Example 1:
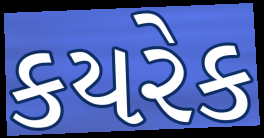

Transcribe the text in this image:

કયરેક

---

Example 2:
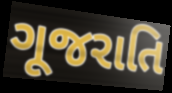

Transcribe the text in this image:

ગૂજરાતિ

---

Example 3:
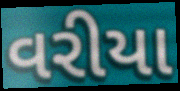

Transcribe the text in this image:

વરીયા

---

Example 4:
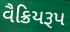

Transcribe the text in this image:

વૈક્રિયરૂપ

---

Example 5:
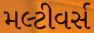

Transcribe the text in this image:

મલ્ટીવર્સ